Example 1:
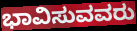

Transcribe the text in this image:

ಭಾವಿಸುವವರು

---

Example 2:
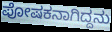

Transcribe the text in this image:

ಪೋಷಕನಾಗಿದ್ದನು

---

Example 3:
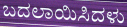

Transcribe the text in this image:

ಬದಲಾಯಿಸಿದಳು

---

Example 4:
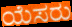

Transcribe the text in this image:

ಯೆಸರು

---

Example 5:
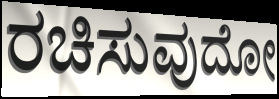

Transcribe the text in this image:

ರಚಿಸುವುದೋ